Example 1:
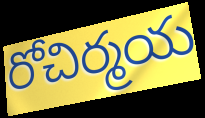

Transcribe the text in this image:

రోచిర్మయ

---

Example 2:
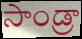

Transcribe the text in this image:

సాండ్రా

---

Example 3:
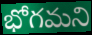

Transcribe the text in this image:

భోగమని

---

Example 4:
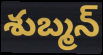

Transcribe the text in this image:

శుబ్మన్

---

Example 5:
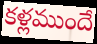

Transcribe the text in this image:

కళ్లముందే